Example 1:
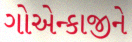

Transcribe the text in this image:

ગોએન્કાજીને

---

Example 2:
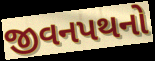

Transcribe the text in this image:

જીવનપથનો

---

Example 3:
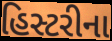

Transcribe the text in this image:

હિસ્ટરીના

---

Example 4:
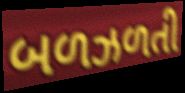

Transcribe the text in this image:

બળઝળતી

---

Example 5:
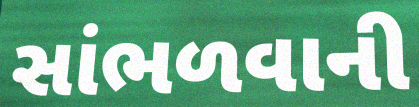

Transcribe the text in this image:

સાંભળવાની